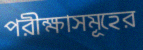
পরীক্ষাসমূহের